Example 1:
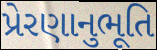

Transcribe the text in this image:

પ્રેરણાનુભૂતિ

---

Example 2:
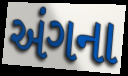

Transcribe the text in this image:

અંગના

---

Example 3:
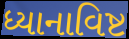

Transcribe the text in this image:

ધ્યાનાવિષ્ટ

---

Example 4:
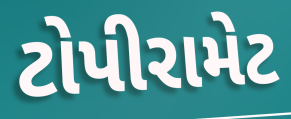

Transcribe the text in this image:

ટોપીરામેટ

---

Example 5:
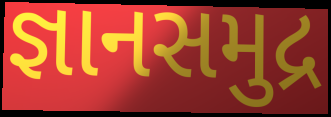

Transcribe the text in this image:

જ્ઞાનસમુદ્ર